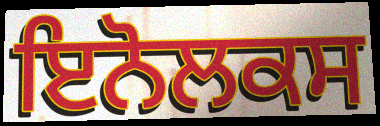
ਇਨੋਲਕਸ